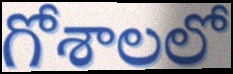
గోశాలలో